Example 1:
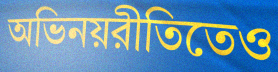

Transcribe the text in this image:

অভিনয়রীতিতেও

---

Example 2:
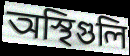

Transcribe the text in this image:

অস্থিগুলি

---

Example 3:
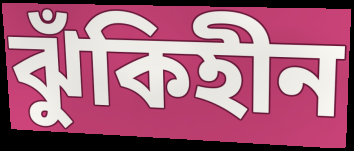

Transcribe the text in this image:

ঝুঁকিহীন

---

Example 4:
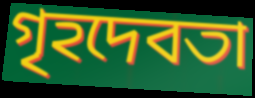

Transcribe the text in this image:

গৃহদেবতা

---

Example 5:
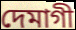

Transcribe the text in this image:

দেমাগী